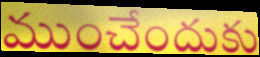
ముంచేందుకు